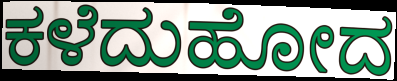
ಕಳೆದುಹೋದ